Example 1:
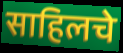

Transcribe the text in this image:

साहिलचे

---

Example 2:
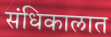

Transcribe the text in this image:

संधिकालात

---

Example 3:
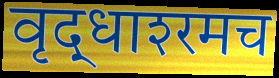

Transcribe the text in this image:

वृद्धाश्रमच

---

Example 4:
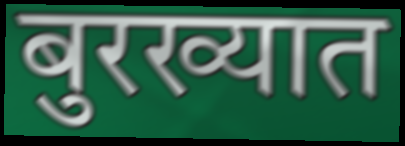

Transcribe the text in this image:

बुरख्यात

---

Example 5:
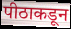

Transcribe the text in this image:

पीठाकडून